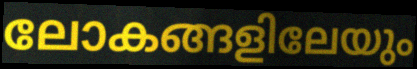
ലോകങ്ങളിലേയും